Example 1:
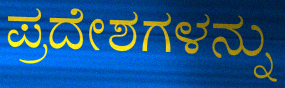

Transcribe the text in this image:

ಪ್ರದೇಶಗಳನ್ನು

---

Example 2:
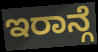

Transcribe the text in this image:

ಇರಾನ್ಗೆ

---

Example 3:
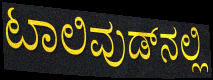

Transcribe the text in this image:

ಟಾಲಿವುಡ್‌ನಲ್ಲಿ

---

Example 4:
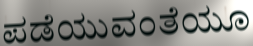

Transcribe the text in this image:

ಪಡೆಯುವಂತೆಯೂ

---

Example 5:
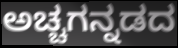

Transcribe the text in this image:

ಅಚ್ಚಗನ್ನಡದ